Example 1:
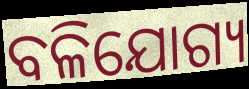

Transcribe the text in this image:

ବଳିଯୋଗ୍ୟ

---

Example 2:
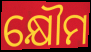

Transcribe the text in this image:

କ୍ଷୌମ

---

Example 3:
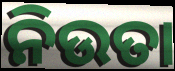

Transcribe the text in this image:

ନିଉତା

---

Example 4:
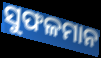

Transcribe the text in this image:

ସୁଫଳମାନ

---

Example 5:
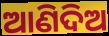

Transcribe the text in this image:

ଆଣିଦିଅ